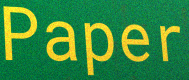
Paper